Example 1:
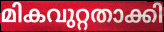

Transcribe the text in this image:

മികവുറ്റതാക്കി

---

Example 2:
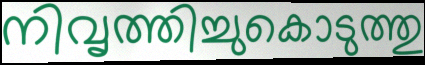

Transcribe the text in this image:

നിവൃത്തിച്ചുകൊടുത്തു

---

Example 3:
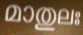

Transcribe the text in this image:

മാതുലഃ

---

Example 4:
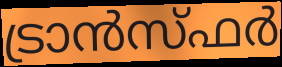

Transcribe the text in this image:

ട്രാൻസ്ഫർ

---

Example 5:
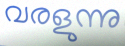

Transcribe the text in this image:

വരളുന്നു